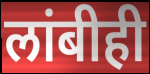
लांबीही